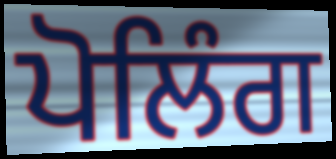
ਪੋਲਿੰਗ